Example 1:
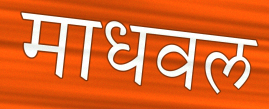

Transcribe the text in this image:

माधवल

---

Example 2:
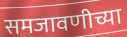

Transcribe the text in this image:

समजावणीच्या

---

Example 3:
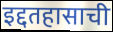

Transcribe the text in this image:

इद्दतहासाची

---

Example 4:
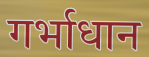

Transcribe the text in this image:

गर्भाधान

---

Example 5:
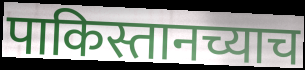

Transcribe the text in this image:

पाकिस्तानच्याच